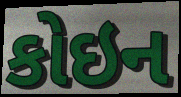
કોઇન